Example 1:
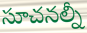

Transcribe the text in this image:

సూచనల్నీ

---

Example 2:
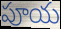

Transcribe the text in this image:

పూయ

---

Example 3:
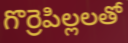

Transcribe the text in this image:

గొర్రెపిల్లలతో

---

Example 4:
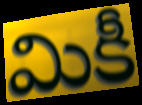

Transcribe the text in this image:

మికీ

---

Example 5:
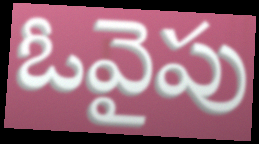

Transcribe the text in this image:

ఓవైపు